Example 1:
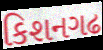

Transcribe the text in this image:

કિશનગઢ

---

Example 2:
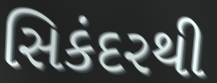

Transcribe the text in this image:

સિકંદરથી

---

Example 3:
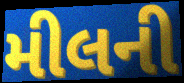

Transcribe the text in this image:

મીલની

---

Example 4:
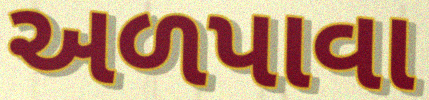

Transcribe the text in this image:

અળપાવા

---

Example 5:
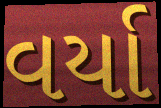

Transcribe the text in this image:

વર્યા